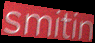
smitin